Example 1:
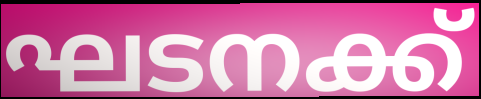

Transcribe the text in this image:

ഘടനക്ക്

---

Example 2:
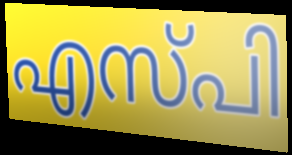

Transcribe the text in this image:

എസ്പി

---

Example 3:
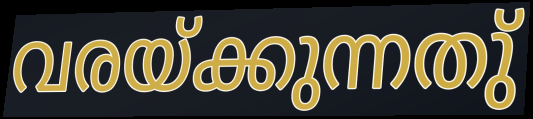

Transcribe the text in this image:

വരയ്ക്കുന്നതു്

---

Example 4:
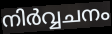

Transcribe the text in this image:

നിർവ്വചനം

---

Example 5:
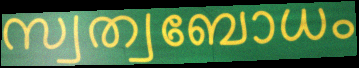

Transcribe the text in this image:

സ്വത്വബോധം